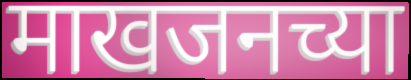
माखजनच्या